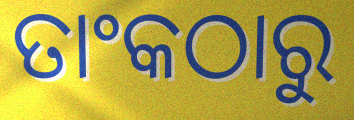
ତାଂକଠାରୁ